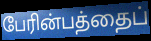
பேரின்பத்தைப்